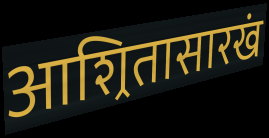
आश्रितासारखं